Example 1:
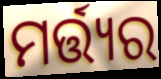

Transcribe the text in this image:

ମର୍ତ୍ତ୍ୟର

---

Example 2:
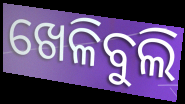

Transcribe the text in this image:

ଖେଳିବୁଲି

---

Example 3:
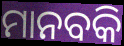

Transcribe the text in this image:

ମାନବକି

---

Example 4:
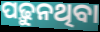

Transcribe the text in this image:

ପଢ଼ୁନଥିବା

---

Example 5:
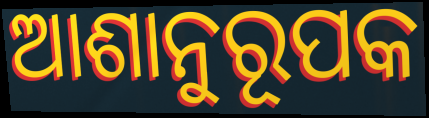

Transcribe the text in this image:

ଆଶାନୁରୂପକ